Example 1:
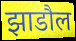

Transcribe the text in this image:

झाडौल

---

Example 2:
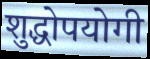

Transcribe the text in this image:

शुद्धोपयोगी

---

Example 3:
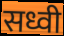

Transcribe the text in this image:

सध्वी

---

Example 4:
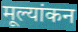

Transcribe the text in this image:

मूल्‍यांकन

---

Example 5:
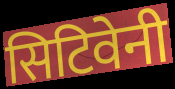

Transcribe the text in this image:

सिटिवेनी